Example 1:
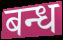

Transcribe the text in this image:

बन्ध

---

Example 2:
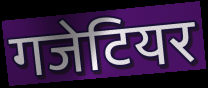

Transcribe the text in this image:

गजेटियर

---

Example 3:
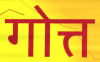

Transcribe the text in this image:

गोत्त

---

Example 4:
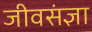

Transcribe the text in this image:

जीवसंज्ञा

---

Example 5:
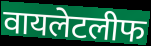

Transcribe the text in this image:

वायलेटलीफ